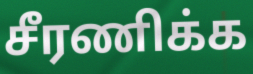
சீரணிக்க